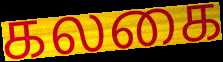
கலகை